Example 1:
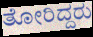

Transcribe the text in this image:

ತೋರಿದ್ದರು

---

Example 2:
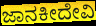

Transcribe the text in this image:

ಜಾನಕೀದೇವಿ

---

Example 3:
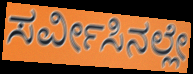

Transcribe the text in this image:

ಸರ್ವೀಸಿನಲ್ಲೇ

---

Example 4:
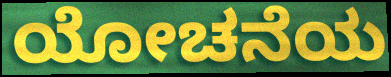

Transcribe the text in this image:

ಯೋಚನೆಯ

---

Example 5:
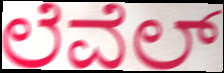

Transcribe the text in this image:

ಲೆವೆಲ್